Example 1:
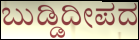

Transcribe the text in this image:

ಬುಡ್ಡಿದೀಪದ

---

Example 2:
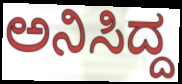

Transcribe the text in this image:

ಅನಿಸಿದ್ದ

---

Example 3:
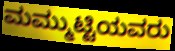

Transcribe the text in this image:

ಮಮ್ಮುಟ್ಟಿಯವರು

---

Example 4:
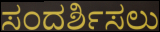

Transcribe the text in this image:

ಸಂದರ್ಶಿಸಲು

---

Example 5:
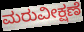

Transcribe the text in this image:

ಮರುವೀಕ್ಷಣೆ